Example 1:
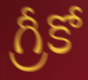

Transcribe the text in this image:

గ్రీకో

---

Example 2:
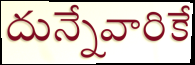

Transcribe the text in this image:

దున్నేవారికే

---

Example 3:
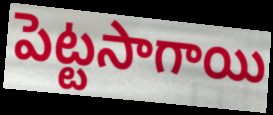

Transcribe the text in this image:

పెట్టసాగాయి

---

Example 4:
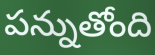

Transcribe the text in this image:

పన్నుతోంది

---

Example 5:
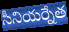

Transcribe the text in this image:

సీనియర్నేత